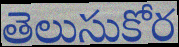
తెలుసుకోర